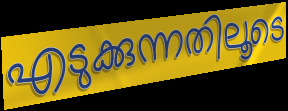
എടുക്കുന്നതിലൂടെ